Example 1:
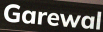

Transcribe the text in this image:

Garewal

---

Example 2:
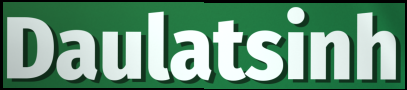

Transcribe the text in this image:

Daulatsinh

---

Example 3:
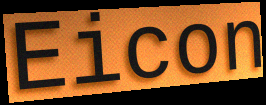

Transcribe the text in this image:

Eicon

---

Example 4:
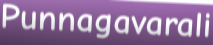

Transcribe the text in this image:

Punnagavarali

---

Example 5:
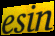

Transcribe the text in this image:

esin